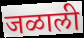
जळाली